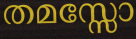
തമസ്സോ